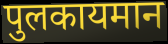
पुलकायमान